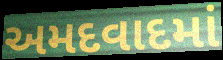
અમદવાદમાં